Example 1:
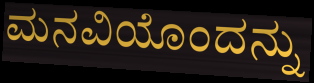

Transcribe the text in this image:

ಮನವಿಯೊಂದನ್ನು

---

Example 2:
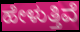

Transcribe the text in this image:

ಹೇಳುತ್ತಿವೆ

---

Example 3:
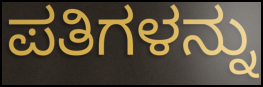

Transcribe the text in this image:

ಪತಿಗಳನ್ನು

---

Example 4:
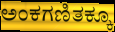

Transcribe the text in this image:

ಅಂಕಗಣಿತಕ್ಕೂ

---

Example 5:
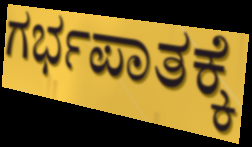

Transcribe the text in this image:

ಗರ್ಭಪಾತಕ್ಕೆ